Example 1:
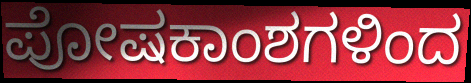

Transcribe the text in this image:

ಪೋಷಕಾಂಶಗಳಿಂದ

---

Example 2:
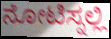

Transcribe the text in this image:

ನೋಟಿಸ್ನಲ್ಲಿ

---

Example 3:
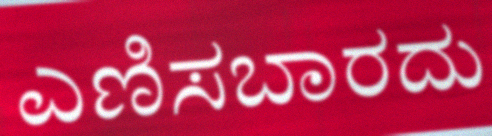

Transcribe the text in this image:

ಎಣಿಸಬಾರದು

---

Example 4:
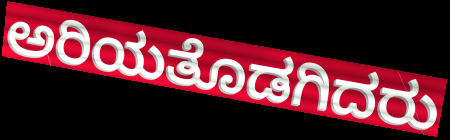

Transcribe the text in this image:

ಅರಿಯತೊಡಗಿದರು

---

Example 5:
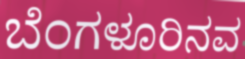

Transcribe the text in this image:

ಬೆಂಗಳೂರಿನವ